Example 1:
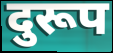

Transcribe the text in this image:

दुरूप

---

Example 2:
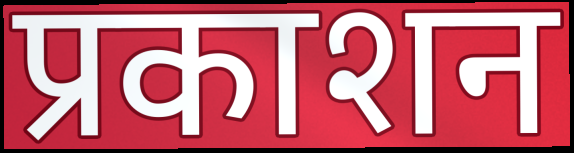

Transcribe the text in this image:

प्रकाशन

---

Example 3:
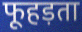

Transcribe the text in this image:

फूहड़ता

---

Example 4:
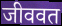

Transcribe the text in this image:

जीववत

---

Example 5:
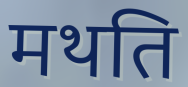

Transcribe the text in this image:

मथति